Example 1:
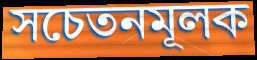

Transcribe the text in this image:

সচেতনমূলক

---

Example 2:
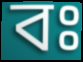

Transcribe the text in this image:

বঃ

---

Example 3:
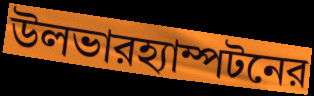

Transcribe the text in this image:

উলভারহ্যাম্পটনের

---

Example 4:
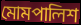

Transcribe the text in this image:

মোমপালিশ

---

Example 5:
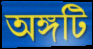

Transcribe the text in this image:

অঙ্গটি